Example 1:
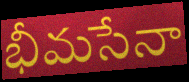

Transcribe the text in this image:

భీమసేనా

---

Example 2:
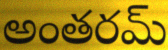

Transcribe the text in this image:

అంతరమ్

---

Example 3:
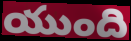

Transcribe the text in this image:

యుంది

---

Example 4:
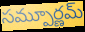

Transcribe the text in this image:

సమ్పూర్ణమ్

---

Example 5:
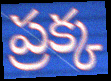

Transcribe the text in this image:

ప్రక్క